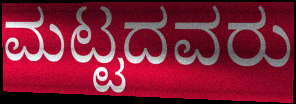
ಮಟ್ಟದವರು